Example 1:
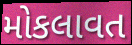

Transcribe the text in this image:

મોકલાવત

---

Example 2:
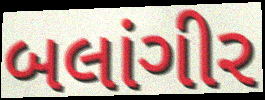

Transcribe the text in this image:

બલાંગીર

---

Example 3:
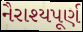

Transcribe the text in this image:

નૈરાશ્યપૂર્ણ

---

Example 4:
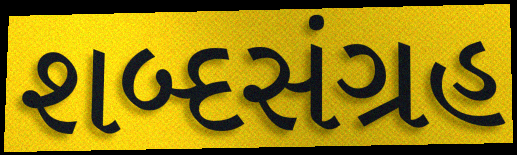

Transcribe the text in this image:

શબ્દસંગ્રહ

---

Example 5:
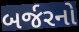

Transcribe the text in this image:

બર્જરનો